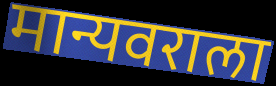
मान्यवराला